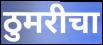
ठुमरीचा